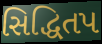
સિદ્ધિતપ